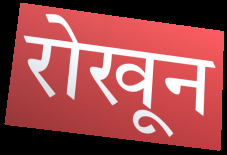
रोखून